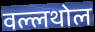
वल्लथोल